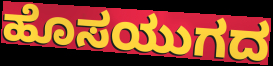
ಹೊಸಯುಗದ